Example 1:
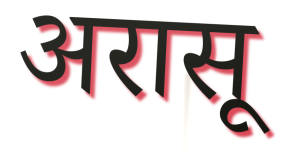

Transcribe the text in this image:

अरासू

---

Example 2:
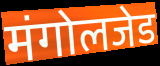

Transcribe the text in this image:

मंगोलजेड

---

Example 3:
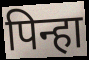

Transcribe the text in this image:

पिन्हा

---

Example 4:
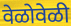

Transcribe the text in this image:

वेळोवेळी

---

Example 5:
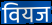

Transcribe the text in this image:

वियज